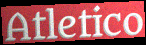
Atletico